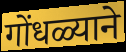
गोंधळ्याने